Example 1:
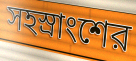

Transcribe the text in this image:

সহস্রাংশের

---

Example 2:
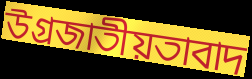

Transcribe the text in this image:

উগ্রজাতীয়তাবাদ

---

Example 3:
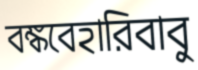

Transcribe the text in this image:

বঙ্কবেহারিবাবু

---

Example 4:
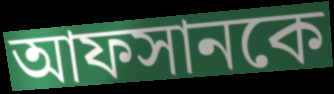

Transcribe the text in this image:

আফসানকে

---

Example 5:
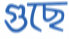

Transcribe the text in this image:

গুছে